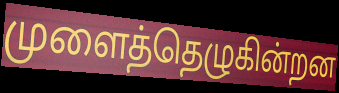
முளைத்தெழுகின்றன